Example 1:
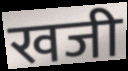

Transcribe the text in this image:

खजी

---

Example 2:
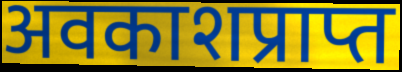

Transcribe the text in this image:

अवकाशप्राप्त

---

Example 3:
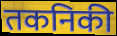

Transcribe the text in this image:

तकनिकी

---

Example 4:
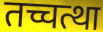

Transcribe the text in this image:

तच्चत्था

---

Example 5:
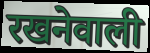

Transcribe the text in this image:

रखनेवाली